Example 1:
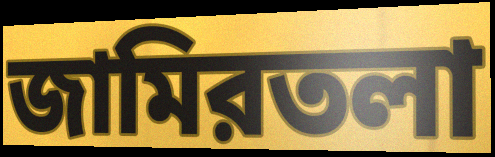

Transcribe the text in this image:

জামিরতলা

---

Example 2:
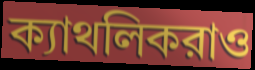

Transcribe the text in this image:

ক্যাথলিকরাও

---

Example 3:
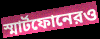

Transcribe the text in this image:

স্মার্টফোনেরও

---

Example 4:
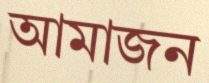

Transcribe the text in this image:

আমাজন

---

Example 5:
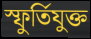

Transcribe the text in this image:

স্ফুর্তিযুক্ত